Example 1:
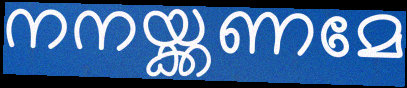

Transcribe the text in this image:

നനയ്ക്കണമേ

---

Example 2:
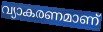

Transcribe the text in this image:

വ്യാകരണമാണ്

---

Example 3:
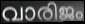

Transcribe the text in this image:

വാരിജം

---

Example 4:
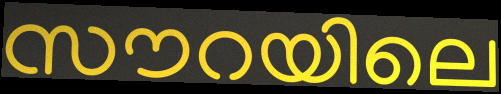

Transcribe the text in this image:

സൗറയിലെ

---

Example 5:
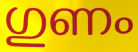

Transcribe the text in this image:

ഗുണം